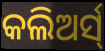
କଲିଅର୍ସ୍